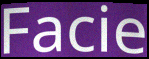
Facie